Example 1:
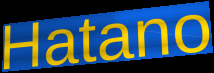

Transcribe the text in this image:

Hatano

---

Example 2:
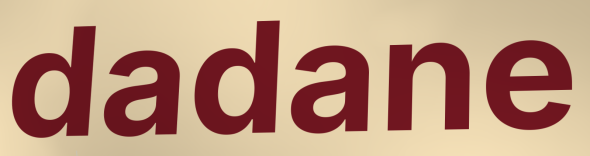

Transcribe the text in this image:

dadane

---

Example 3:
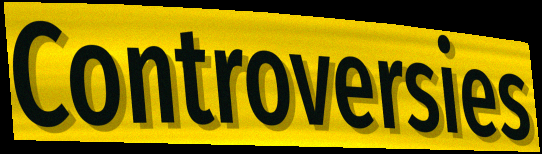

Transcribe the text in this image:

Controversies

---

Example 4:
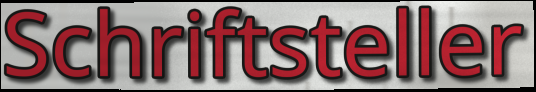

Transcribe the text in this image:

Schriftsteller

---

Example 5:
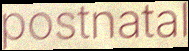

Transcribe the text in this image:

postnatal